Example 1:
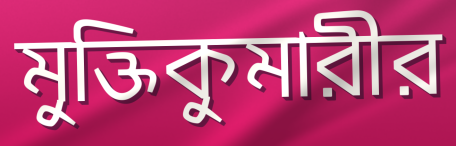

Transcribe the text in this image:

মুক্তিকুমারীর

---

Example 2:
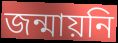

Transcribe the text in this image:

জন্মায়নি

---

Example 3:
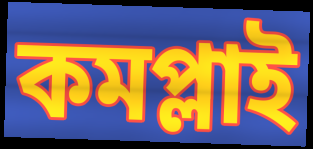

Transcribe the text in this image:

কমপ্লাই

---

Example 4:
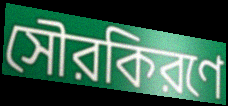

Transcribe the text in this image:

সৌরকিরণে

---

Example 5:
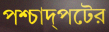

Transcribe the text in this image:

পশ্চাদ্পটের